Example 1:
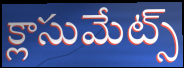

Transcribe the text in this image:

క్లాసుమేట్స్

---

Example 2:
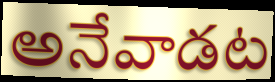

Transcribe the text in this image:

అనేవాడట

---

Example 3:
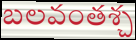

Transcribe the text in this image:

బలవంతశ్చ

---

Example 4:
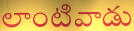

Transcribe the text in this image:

లాంటివాడు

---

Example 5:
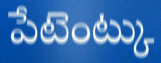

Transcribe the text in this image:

పేటెంట్కు